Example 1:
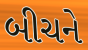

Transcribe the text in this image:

બીચને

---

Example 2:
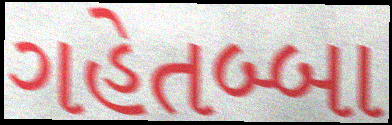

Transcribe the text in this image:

ગહેતબ્બા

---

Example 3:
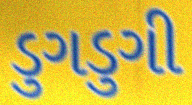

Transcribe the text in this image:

ડુગડુગી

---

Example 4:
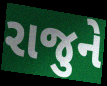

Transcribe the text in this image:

રાજુને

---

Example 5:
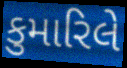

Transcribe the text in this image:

કુમારિલે